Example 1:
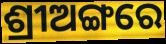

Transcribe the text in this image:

ଶ୍ରୀଅଙ୍ଗରେ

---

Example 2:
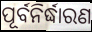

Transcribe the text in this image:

ପୂର୍ବନିର୍ଦ୍ଧାରଣ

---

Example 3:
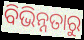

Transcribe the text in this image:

ବିଭିନ୍ନତାରୁ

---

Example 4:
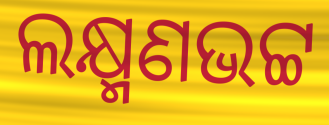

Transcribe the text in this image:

ଲକ୍ଷ୍ମଣଭଟ୍ଟ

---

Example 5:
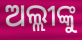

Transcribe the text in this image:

ଅଲ୍ଲୀଙ୍କୁ